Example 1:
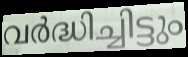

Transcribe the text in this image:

വർദ്ധിച്ചിട്ടും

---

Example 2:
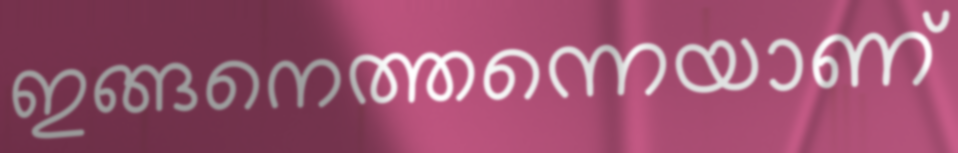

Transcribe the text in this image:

ഇങ്ങനെത്തന്നെയാണ്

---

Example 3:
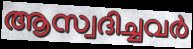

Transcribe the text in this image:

ആസ്വദിച്ചവർ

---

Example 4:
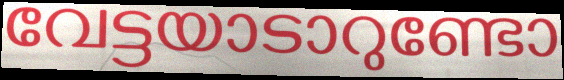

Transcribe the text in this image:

വേട്ടയാടാറുണ്ടോ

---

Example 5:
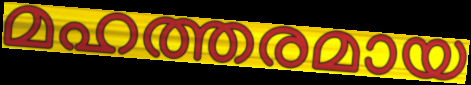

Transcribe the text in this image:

മഹത്തരമായ